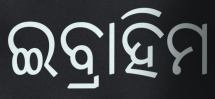
ଇବ୍ରାହିମ